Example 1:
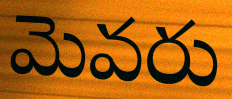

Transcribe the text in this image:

మెవరు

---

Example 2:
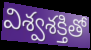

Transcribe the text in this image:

విశ్వశక్తితో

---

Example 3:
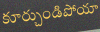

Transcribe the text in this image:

కూర్చుండిపోయా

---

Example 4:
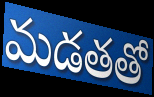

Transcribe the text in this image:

మడతతో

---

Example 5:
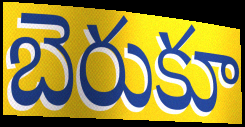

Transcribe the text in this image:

బెరుకూ